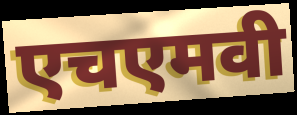
एचएमवी